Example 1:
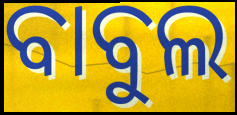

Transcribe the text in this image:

ବାବୁଲ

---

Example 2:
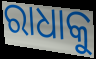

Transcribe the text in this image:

ରାଧାକୁ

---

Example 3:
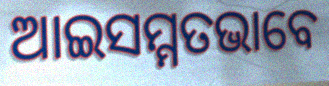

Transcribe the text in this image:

ଆଇସମ୍ମତଭାବେ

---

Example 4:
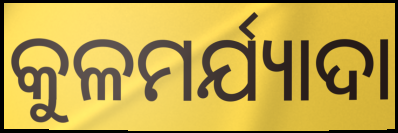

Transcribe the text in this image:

କୁଳମର୍ଯ୍ୟାଦା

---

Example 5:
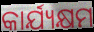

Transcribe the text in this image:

କାର୍ଯ୍ୟକ୍ଷମ